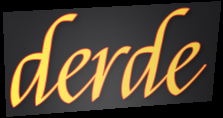
derde